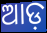
ଆଡ଼